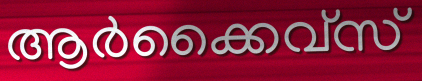
ആർക്കൈവ്സ്